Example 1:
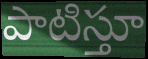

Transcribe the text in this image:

పాటిస్తూ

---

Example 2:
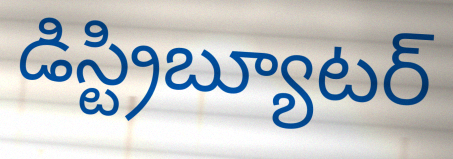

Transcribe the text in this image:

డిస్ట్రిబ్యూటర్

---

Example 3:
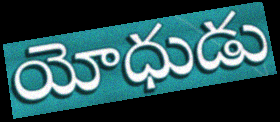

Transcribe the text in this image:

యోధుడు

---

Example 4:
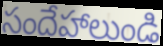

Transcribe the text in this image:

సందేహాలుండి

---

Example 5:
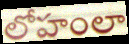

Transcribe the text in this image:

లోహంలా